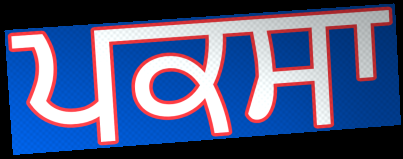
ਪਕਸਾ